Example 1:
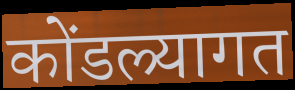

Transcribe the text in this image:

कोंडल्यागत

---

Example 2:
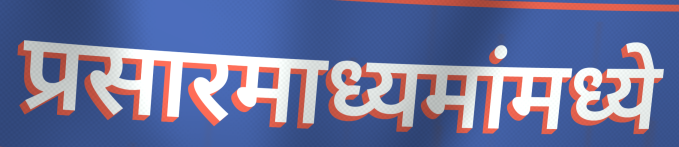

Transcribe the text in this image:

प्रसारमाध्यमांमध्ये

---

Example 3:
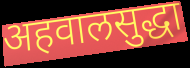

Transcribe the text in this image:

अहवालसुद्धा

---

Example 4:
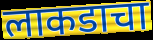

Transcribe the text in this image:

लाकडाचा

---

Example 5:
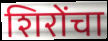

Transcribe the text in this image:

शिरोंचा